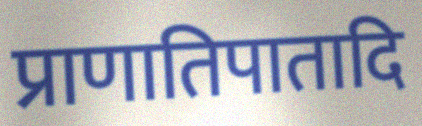
प्राणातिपातादि